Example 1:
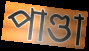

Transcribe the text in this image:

পাণ্ডা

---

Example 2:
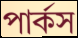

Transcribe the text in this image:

পার্কস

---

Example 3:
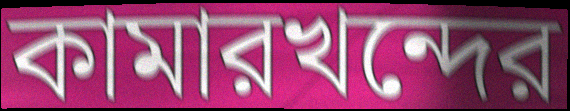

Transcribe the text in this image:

কামারখন্দের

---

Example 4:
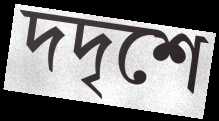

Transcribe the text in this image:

দদৃশে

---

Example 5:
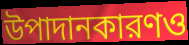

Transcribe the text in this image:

উপাদানকারণও